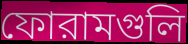
ফোরামগুলি